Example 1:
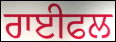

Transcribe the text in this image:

ਰਾਈਫਲ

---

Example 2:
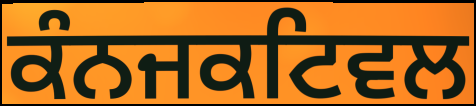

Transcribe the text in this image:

ਕੰਨਜਕਟਿਵਲ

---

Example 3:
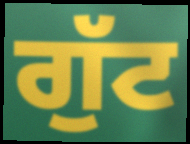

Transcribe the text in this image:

ਗੁੱਟ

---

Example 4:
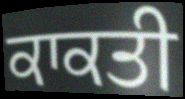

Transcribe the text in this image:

ਕਾਕਤੀ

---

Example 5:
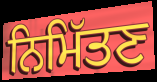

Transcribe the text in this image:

ਨਿਮਿੱਤਣ